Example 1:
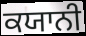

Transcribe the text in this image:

ਕਯਾਨੀ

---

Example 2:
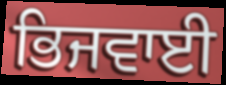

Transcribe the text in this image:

ਭਿਜਵਾਈ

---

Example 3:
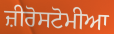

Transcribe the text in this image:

ਜ਼ੀਰੋਸਟੋਮੀਆ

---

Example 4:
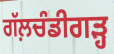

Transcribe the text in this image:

ਗੱਲ਼ਚੰਡੀਗੜ੍ਹ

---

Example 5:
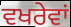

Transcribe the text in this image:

ਵਖਰੇਵਾਂ